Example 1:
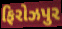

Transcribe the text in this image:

ફિરોઝપુર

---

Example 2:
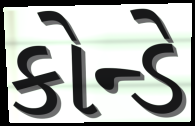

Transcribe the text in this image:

કોન્ડે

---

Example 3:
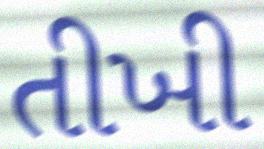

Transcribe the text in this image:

તીખી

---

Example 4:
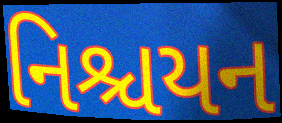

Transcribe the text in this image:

નિશ્ચયન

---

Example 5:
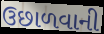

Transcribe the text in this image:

ઉછાળવાની